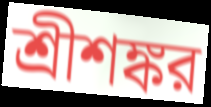
শ্রীশঙ্কর